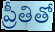
ప్రీతితో